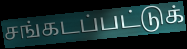
சங்கடப்பட்டுக்